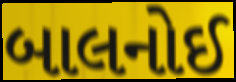
બાલનોઈ